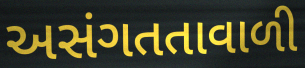
અસંગતતાવાળી